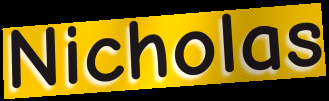
Nicholas